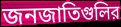
জনজাতিগুলির